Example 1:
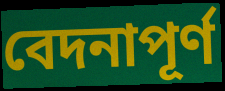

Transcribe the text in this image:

বেদনাপূর্ণ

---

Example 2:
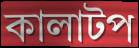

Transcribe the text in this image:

কালাটপ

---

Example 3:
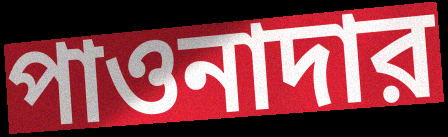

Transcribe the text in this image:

পাওনাদার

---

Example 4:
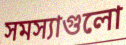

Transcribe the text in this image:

সমস্যাগুলো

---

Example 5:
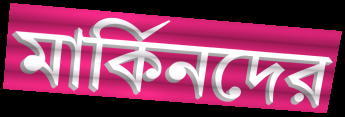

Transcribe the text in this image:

মার্কিনদের